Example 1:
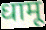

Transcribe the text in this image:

धामू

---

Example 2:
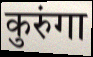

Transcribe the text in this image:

कुरुंगा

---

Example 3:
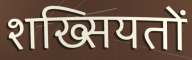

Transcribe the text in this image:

शख्सियतों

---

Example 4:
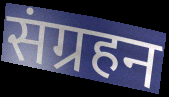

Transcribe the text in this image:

संग्रहन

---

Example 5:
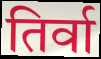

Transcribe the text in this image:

तिर्वा